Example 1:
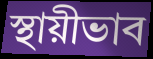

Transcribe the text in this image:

স্থায়ীভাব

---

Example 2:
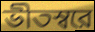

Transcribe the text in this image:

ভীতস্বরে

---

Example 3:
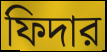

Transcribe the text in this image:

ফিদার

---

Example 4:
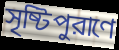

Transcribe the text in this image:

সৃষ্টিপুরাণে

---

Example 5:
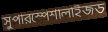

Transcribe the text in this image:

সুপারস্পেশালাইজড